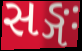
સઙ્ગઃ